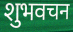
शुभवचन